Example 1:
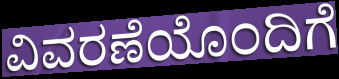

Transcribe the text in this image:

ವಿವರಣೆಯೊಂದಿಗೆ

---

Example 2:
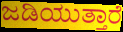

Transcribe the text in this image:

ಜಡಿಯುತ್ತಾರೆ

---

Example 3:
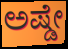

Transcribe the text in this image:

ಅಷ್ಡೇ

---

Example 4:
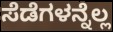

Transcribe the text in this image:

ಸೆಡೆಗಳನ್ನೆಲ್ಲ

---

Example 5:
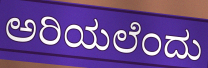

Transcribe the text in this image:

ಅರಿಯಲೆಂದು